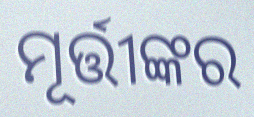
ମୂର୍ତ୍ତୀଙ୍କର